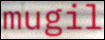
mugil